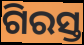
ଗିରସ୍ତ